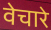
वेचारे